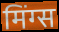
मिंग्स